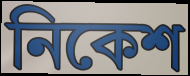
নিকেশ